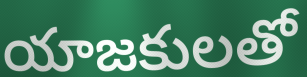
యాజకులతో